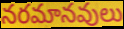
నరమానవులు